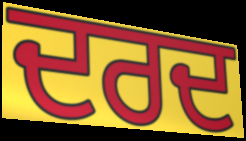
ਦਰਦ